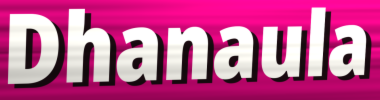
Dhanaula